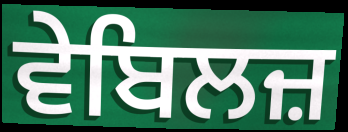
ਵੇਬਿਲਜ਼